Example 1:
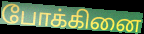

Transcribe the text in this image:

போக்கினை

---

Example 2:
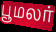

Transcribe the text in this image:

பூமலர்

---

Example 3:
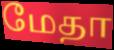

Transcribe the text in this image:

மேதா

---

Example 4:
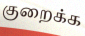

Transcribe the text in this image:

குறைக்க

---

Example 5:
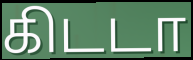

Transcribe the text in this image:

கிடடா